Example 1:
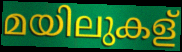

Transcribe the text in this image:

മയിലുകള്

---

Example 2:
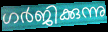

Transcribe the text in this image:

ഗർജിക്കുന്നു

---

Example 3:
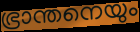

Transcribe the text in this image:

ഭ്രാന്തനെയും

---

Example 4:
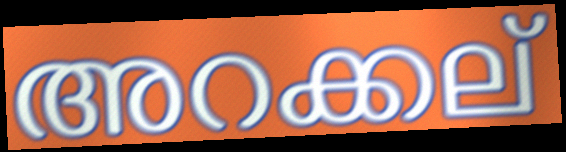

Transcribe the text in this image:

അറക്കല്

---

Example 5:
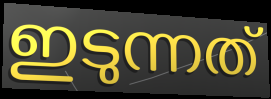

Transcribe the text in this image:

ഇടുന്നത്